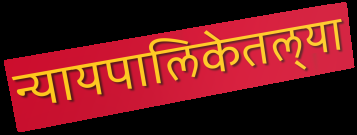
न्यायपालिकेतल्या